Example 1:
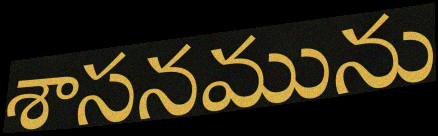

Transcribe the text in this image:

శాసనమును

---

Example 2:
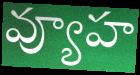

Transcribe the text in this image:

వ్యూహ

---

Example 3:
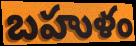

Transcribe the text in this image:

బహుళం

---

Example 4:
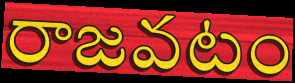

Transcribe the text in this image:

రాజవటం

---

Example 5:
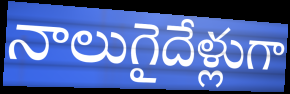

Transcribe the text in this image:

నాలుగైదేళ్లుగా